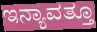
ಇನ್ಯಾವತ್ತೂ